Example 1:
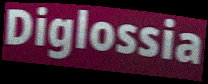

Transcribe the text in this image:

Diglossia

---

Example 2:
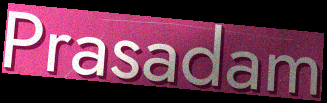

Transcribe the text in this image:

Prasadam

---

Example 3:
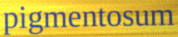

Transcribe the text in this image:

pigmentosum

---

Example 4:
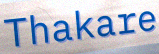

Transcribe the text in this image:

Thakare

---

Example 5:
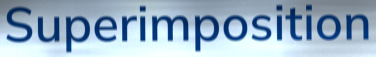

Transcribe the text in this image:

Superimposition